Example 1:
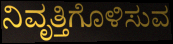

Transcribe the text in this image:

ನಿವೃತ್ತಿಗೊಳಿಸುವ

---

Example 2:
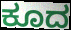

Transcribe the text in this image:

ಕೂದ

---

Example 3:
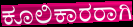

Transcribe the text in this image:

ಕೂಲಿಕಾರರಾಗಿ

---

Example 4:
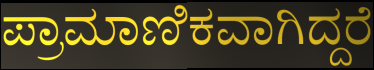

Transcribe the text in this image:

ಪ್ರಾಮಾಣಿಕವಾಗಿದ್ದರೆ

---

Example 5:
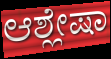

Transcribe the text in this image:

ಆಶ್ಲೇಷಾ